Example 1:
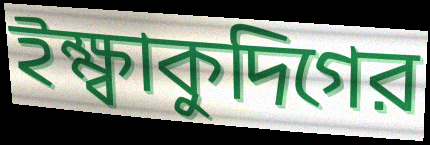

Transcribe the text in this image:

ইক্ষ্বাকুদিগের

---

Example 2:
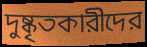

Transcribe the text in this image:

দুষ্কৃতকারীদের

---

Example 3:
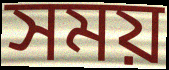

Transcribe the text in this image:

সময়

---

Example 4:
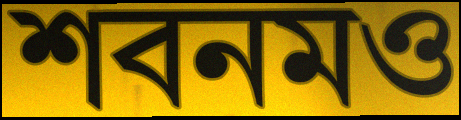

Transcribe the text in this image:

শবনমও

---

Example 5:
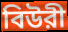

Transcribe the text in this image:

বিউরী